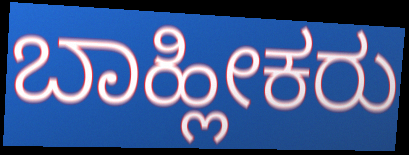
ಬಾಹ್ಲೀಕರು